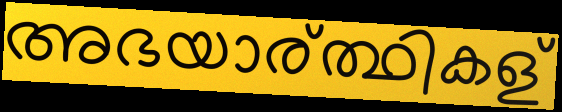
അഭയാര്ത്ഥികള്